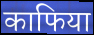
काफिया